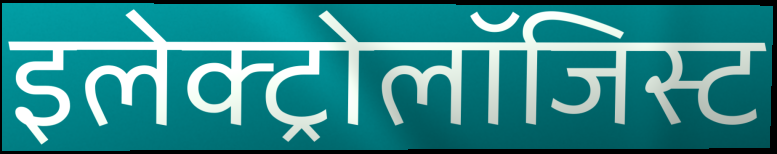
इलेक्ट्रोलॉजिस्ट